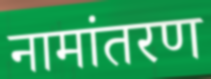
नामांतरण